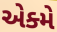
એક્મે